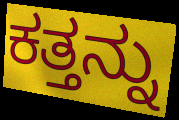
ಕತ್ತನ್ನು